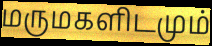
மருமகளிடமும்